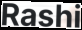
Rashi